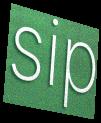
sip